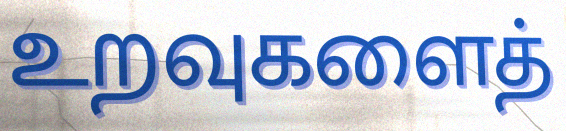
உறவுகளைத்